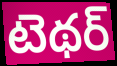
టెథర్